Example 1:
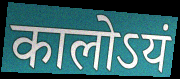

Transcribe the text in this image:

कालोऽयं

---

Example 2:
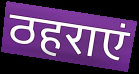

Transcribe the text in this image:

ठहराएं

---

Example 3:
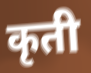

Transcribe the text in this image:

कृती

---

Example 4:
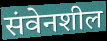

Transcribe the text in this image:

संवेनशील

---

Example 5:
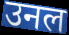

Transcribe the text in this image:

उनल